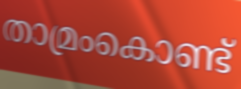
താമ്രംകൊണ്ട്